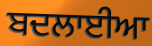
ਬਦਲਾਈਆ